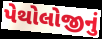
પેથોલોજીનું